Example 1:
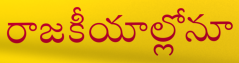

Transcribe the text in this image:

రాజకీయాల్లోనూ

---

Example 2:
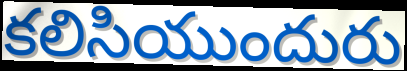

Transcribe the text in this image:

కలిసియుందురు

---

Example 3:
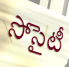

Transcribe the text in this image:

సోసైటీ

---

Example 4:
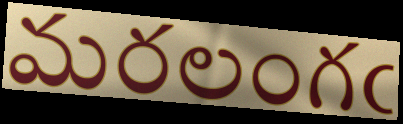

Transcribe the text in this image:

మరలంగఁ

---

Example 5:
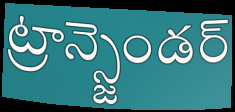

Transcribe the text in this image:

ట్రాన్స్జెండర్